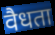
वैधता